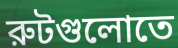
রুটগুলোতে